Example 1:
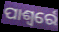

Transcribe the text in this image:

ପାଶ୍ୱର୍ରେ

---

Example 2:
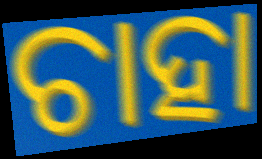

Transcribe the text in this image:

ଚାହା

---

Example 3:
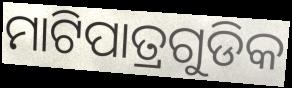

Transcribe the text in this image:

ମାଟିପାତ୍ରଗୁଡିକ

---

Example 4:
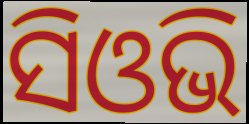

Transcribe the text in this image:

ସିଓଭି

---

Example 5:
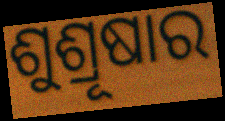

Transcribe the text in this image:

ଶୁଶ୍ରୂଷାର